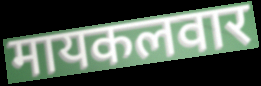
मायकलवार